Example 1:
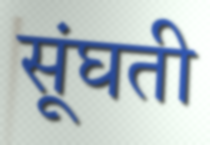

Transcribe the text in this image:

सूंघती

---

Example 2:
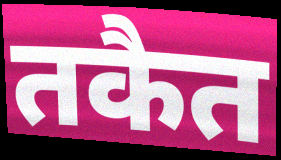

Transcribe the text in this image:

तकैत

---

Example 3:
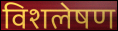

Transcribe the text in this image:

विशलेषण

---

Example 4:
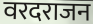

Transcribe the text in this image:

वरदराजन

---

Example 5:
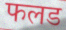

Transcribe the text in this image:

फलड